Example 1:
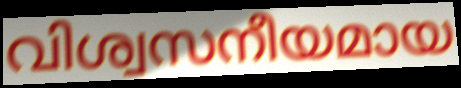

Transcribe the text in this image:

വിശ്വസനീയമായ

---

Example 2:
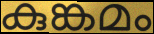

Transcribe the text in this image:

കുങ്കമം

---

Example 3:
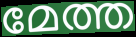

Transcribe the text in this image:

മേത്ത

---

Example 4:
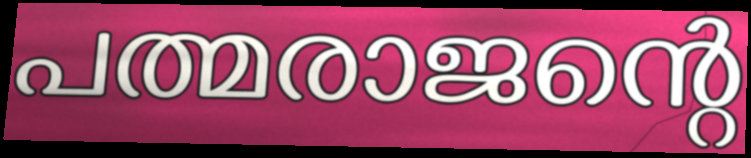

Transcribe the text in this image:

പത്മരാജന്റെ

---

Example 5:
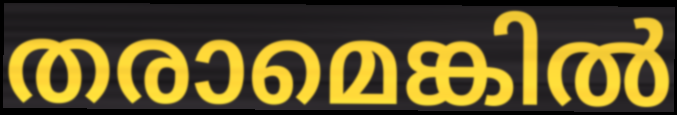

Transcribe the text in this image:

തരാമെങ്കിൽ